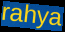
rahya